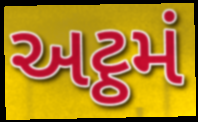
અટ્ઠમં